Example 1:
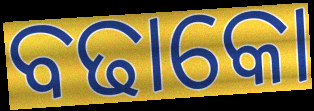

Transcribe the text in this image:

ବଢାକୋ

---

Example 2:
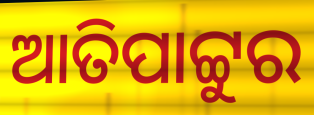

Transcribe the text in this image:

ଆତିପାଟ୍ଟୁର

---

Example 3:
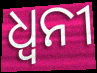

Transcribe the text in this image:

ଧ୍ୱନୀ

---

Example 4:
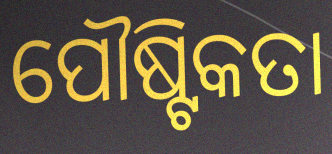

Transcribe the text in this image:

ପୌଷ୍ଟିକତା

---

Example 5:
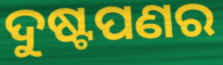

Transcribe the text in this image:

ଦୁଷ୍ଟପଣର